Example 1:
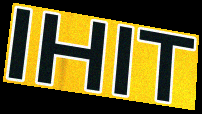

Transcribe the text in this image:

IHIT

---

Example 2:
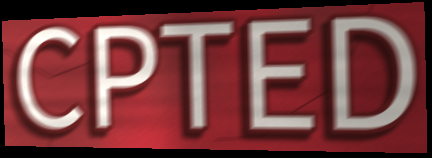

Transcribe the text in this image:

CPTED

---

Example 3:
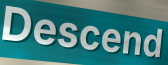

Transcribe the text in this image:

Descend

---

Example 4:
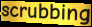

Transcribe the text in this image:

scrubbing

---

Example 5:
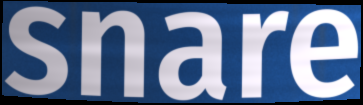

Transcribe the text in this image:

snare